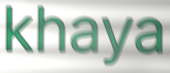
khaya